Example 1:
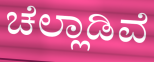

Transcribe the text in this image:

ಚೆಲ್ಲಾಡಿವೆ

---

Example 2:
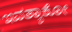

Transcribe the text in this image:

ಇವತ್ಯಾಕೋ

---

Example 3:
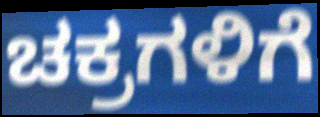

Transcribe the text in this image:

ಚಕ್ರಗಳಿಗೆ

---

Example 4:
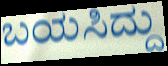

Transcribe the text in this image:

ಬಯಸಿದ್ದು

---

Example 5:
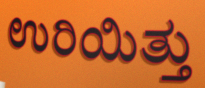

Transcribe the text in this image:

ಉರಿಯಿತ್ತು